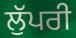
ਲੁੱਪਰੀ